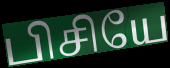
பிசியே